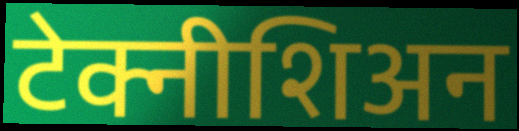
टेक्नीशिअन